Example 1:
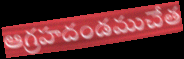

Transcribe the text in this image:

ఆగ్రహదండముచేత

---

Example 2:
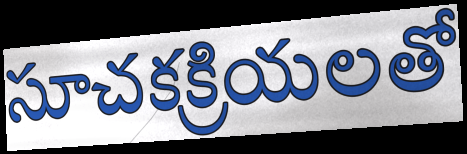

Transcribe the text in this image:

సూచకక్రియలతో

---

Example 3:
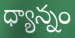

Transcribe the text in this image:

ధ్యాన్నం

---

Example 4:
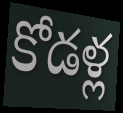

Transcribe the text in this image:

కోడళ్ల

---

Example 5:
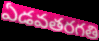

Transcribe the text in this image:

ఏడవతరగతి